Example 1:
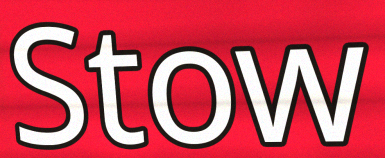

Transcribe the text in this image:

Stow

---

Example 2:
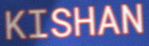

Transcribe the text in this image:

KISHAN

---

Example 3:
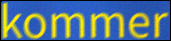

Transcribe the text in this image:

kommer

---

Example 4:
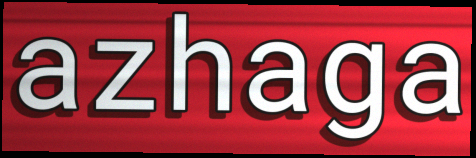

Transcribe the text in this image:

azhaga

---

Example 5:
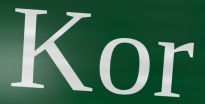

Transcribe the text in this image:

Kor